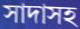
সাদাসহ